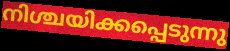
നിശ്ചയിക്കപ്പെടുന്നു